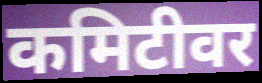
कमिटीवर